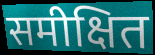
समीक्षित